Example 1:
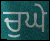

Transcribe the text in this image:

ਚੁਘੇ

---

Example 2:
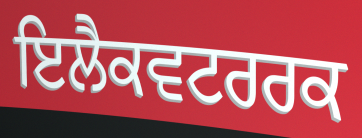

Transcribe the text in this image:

ਇਲੈਕਵਟਰਰਕ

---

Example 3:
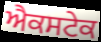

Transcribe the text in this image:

ਐਕਸਟੇਕ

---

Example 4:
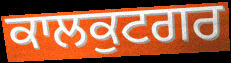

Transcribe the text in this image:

ਕਾਲਕੁਟਗਰ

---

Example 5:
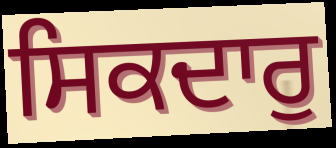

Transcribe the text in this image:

ਸਿਕਦਾਰੁ